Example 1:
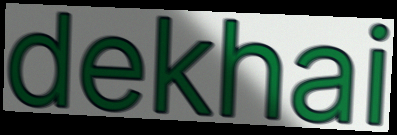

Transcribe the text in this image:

dekhai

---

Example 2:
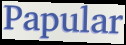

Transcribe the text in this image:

Papular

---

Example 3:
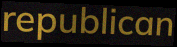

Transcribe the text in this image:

republican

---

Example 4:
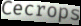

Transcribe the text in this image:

Cecrops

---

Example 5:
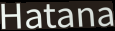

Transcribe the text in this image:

Hatana